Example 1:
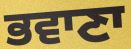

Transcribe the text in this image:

ਭਵਾਣਾ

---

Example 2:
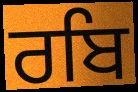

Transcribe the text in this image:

ਰਬਿ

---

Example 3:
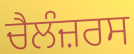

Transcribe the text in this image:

ਚੈਲੰਜ਼ਰਸ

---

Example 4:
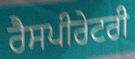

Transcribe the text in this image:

ਰੈਸਪੀਰੇਟਰੀ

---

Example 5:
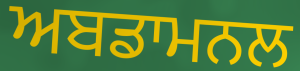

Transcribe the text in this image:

ਅਬਡਾਮਨਲ